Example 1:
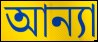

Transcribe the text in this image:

আন্যা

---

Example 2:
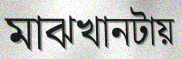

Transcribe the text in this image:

মাঝখানটায়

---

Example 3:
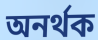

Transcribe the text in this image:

অনর্থক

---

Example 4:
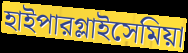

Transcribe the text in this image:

হাইপারগ্লাইসেমিয়া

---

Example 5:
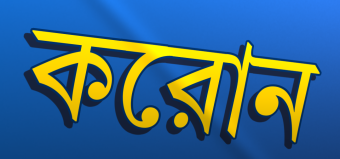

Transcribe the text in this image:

করোন